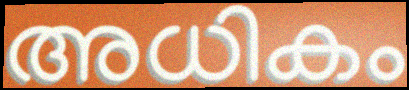
അധികം